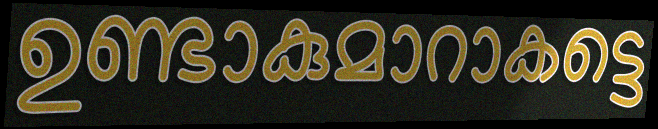
ഉണ്ടാകുമാറാകട്ടെ